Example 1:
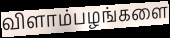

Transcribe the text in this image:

விளாம்பழங்களை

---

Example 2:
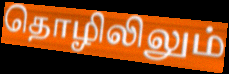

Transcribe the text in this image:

தொழிலிலும்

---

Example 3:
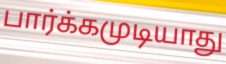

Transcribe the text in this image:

பார்க்கமுடியாது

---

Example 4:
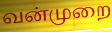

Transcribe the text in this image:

வன்முறை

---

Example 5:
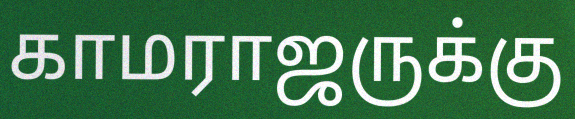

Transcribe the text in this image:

காமராஜருக்கு